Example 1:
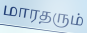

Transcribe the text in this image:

மாரதரும்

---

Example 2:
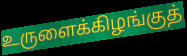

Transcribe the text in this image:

உருளைக்கிழங்குத்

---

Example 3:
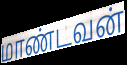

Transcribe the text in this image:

மாண்டவன்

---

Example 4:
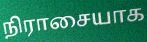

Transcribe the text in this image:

நிராசையாக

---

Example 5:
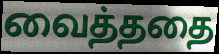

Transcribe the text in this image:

வைத்ததை